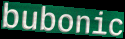
bubonic